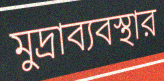
মুদ্রাব্যবস্থার